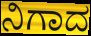
ನಿಗಾದ